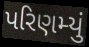
પરિણમ્યું